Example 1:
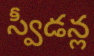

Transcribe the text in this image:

స్వీడన్ల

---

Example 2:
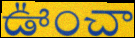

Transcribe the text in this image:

ఊంచా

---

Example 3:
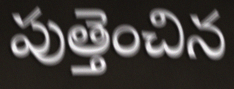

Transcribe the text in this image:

పుత్తెంచిన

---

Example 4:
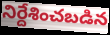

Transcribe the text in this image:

నిర్దేశించబడిన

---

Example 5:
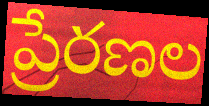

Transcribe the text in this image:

ప్రేరణల